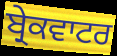
ਬ੍ਰੇਕਵਾਟਰ